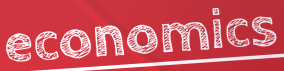
economics